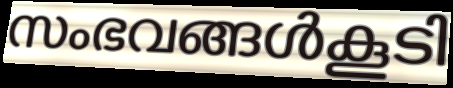
സംഭവങ്ങൾകൂടി